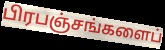
பிரபஞ்சங்களைப்